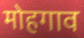
मोहगाव